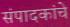
संपादकांचे